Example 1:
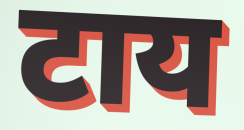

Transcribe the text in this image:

टाय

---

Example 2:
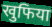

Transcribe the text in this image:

खुफिया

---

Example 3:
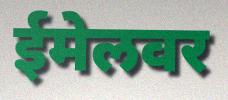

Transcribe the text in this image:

ईमेलवर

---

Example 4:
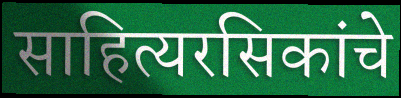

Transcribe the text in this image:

साहित्यरसिकांचे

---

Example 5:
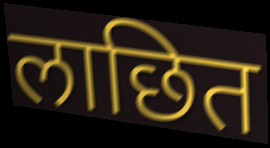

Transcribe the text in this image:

लाछित